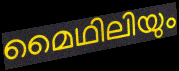
മൈഥിലിയും